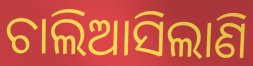
ଚାଲିଆସିଲାଣି